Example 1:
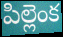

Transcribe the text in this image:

పిల్లెంక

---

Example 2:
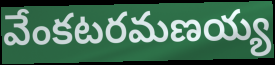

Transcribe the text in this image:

వేంకటరమణయ్య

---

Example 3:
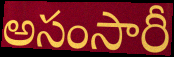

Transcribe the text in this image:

అసంసారీ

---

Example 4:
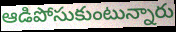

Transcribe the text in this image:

ఆడిపోసుకుంటున్నారు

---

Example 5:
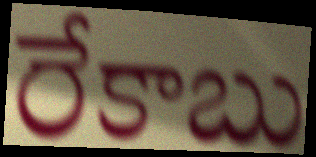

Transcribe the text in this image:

రేకాబు